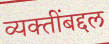
व्यक्तींबद्दल